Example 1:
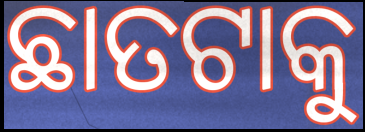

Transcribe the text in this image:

ଛାତଟାକୁ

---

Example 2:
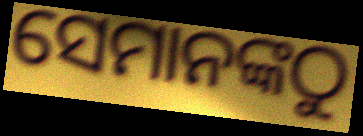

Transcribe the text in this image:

ସେମାନଙ୍କଠୁ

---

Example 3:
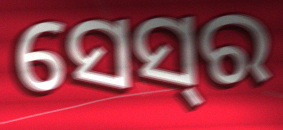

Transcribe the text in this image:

ସେସ୍‌ର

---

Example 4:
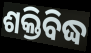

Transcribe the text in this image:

ଶକ୍ତିବିଦ୍ଧ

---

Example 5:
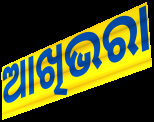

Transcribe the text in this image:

ଆଖିଭରା